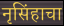
नृसिंहाचा